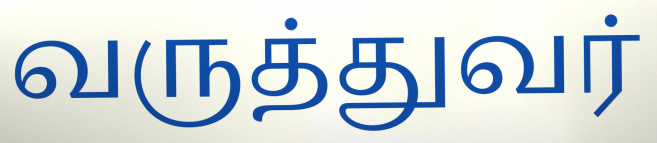
வருத்துவர்